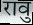
रावु